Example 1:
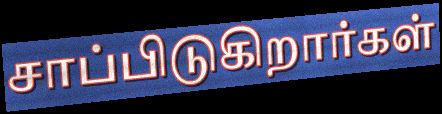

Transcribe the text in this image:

சாப்பிடுகிறார்கள்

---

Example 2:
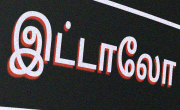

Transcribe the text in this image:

இட்டாலோ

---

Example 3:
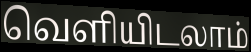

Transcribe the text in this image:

வெளியிடலாம்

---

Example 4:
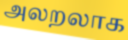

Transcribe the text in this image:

அலறலாக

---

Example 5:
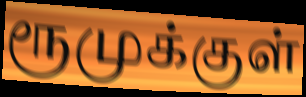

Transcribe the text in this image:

ரூமுக்குள்